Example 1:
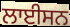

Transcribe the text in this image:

ਲਾਈਸਨ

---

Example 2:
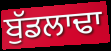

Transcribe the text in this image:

ਬੁੱਡਲਾਢਾ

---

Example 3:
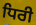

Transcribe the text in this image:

ਧਿਰੀ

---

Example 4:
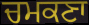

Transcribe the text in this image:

ਚਮਕਣਾ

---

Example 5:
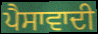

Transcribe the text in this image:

ਪੈਸਾਵਾਦੀ